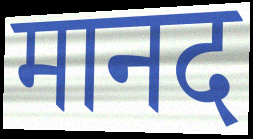
मानद